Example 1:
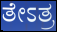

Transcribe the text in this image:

ತೇಽತ್ರ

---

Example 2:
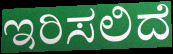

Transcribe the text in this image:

ಇರಿಸಲಿದೆ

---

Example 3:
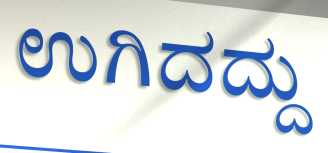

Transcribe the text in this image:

ಉಗಿದದ್ದು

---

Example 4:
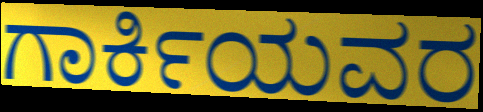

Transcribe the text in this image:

ಗಾರ್ಕಿಯವರ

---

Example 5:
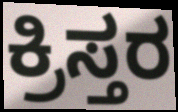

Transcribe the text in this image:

ಕ್ರಿಸ್ತರ